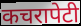
कचरापेटी